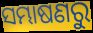
ସମ୍ଭାଷଣରୁ